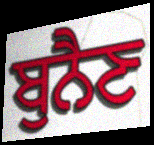
ਬੁਨੈਣ